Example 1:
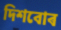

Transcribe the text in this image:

দিশবোৰ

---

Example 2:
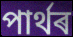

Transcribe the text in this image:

পাৰ্থৰ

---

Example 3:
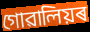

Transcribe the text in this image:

গোৱালিয়ৰ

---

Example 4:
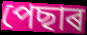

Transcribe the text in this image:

পেছাৰ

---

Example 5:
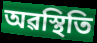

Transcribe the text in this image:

অৱস্থিতি